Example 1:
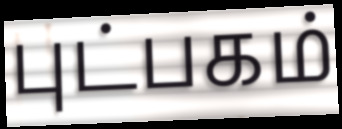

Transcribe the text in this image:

புட்பகம்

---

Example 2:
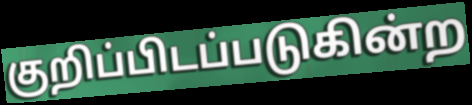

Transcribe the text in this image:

குறிப்பிடப்படுகின்ற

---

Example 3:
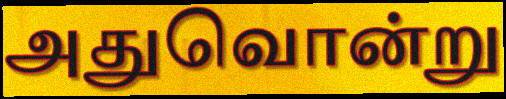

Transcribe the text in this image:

அதுவொன்று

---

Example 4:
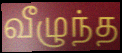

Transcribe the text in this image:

வீழுந்த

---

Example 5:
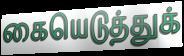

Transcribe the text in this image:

கையெடுத்துக்